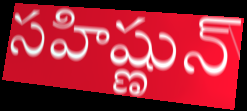
సహిష్ణున్